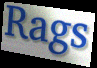
Rags